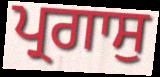
ਪ੍ਰਗਾਸੁ